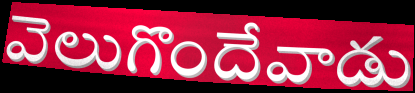
వెలుగొందేవాడు